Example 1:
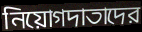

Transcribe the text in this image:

নিয়োগদাতাদের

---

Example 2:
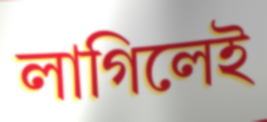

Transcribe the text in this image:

লাগিলেই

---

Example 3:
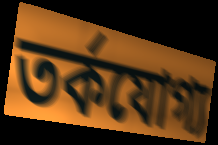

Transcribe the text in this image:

তর্কযোগ্য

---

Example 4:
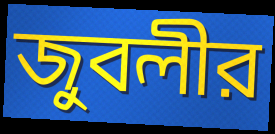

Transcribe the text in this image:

জুবলীর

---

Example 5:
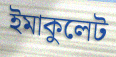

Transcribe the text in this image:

ইমাকুলেট